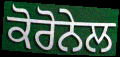
ਕੋਰੋਨੇਲ